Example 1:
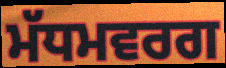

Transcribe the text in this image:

ਮੱਧਮਵਰਗ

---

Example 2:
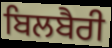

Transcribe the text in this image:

ਬਿਲਬੈਰੀ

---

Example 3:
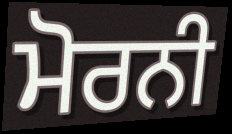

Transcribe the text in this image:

ਮੋਰਨੀ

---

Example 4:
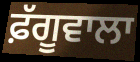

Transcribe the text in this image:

ਫ਼ੱਗੂਵਾਲਾ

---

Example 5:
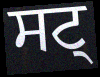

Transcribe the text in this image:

ਸਟ੍